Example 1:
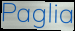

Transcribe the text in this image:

Paglia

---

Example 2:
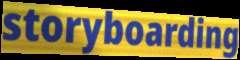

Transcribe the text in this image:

storyboarding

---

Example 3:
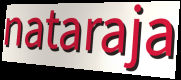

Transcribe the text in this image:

nataraja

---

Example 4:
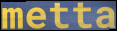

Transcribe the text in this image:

metta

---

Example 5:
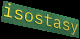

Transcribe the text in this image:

isostasy